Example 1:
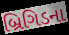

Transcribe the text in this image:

બ્રિગિડના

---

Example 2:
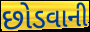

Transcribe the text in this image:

છોડવાની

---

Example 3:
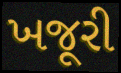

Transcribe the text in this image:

ખજૂરી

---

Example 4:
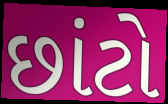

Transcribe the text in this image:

છાંટો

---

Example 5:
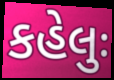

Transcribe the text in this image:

કહેલુઃ